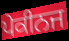
ਪੇਕੀਨਜ